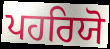
ਪਹਰਿਯੋ